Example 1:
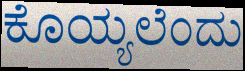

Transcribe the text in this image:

ಕೊಯ್ಯಲೆಂದು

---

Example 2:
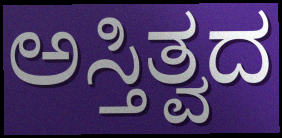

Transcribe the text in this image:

ಅಸ್ತಿತ್ವದ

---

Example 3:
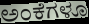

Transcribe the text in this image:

ಅಂಕೆಗಳೂ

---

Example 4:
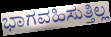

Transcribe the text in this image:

ಭಾಗವಹಿಸುತ್ತಿಲ್ಲ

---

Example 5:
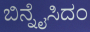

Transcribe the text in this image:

ಬಿನ್ನೈಸಿದಂ